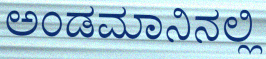
ಅಂಡಮಾನಿನಲ್ಲಿ